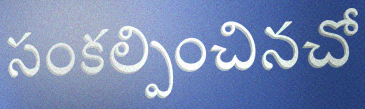
సంకల్పించినచో